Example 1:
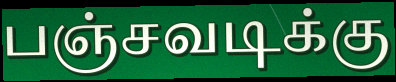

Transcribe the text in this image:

பஞ்சவடிக்கு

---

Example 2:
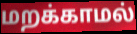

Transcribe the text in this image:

மறக்காமல்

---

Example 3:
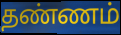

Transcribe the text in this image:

தண்ணம்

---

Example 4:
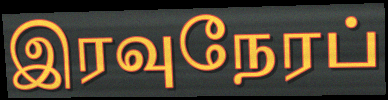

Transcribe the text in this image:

இரவுநேரப்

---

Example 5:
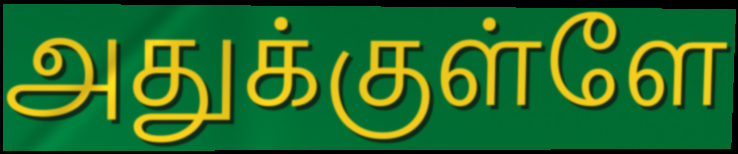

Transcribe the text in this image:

அதுக்குள்ளே